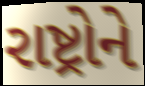
રાષ્ટ્રોને